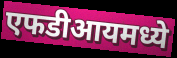
एफडीआयमध्ये